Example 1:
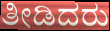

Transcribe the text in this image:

ತೀಡಿದರು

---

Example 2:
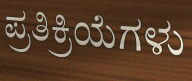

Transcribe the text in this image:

ಪ್ರತಿಕ್ರಿಯೆಗಳು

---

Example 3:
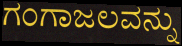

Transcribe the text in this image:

ಗಂಗಾಜಲವನ್ನು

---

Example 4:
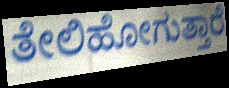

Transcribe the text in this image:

ತೇಲಿಹೋಗುತ್ತಾರೆ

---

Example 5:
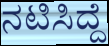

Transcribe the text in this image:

ನಟಿಸಿದ್ದೆ